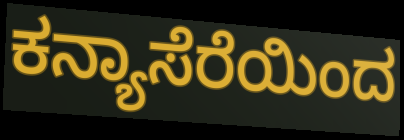
ಕನ್ಯಾಸೆರೆಯಿಂದ